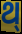
ଥ୍